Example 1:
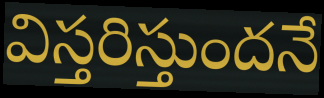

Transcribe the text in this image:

విస్తరిస్తుందనే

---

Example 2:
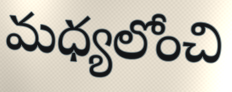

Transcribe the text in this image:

మధ్యలోంచి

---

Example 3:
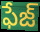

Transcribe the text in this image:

ఫేజ్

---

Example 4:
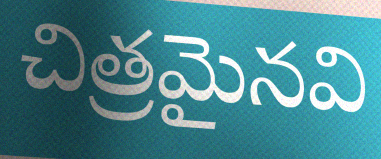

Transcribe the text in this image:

చిత్రమైనవి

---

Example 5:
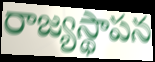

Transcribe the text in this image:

రాజ్యస్థాపన